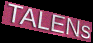
TALENs